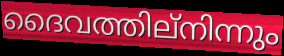
ദൈവത്തില്നിന്നും